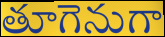
తూగెనుగా